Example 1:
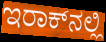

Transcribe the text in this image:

ಇರಾಕ್‌ನಲ್ಲಿ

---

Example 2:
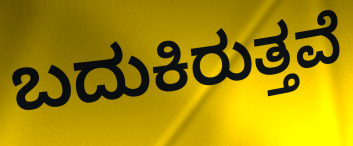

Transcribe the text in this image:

ಬದುಕಿರುತ್ತವೆ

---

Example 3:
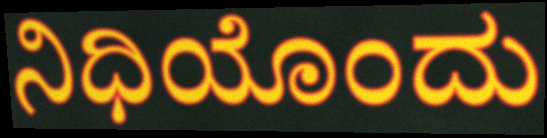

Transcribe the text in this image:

ನಿಧಿಯೊಂದು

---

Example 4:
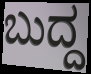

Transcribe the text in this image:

ಬುದ್ದ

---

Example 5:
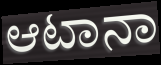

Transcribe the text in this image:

ಆಟಾನಾ